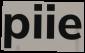
piie